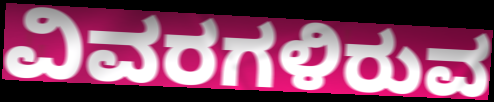
ವಿವರಗಳಿರುವ